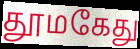
தூமகேது